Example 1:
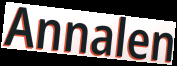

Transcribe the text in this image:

Annalen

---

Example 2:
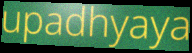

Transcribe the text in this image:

upadhyaya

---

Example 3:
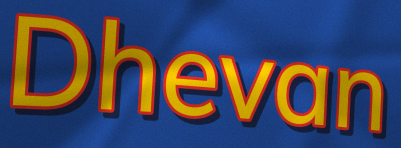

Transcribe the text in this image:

Dhevan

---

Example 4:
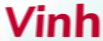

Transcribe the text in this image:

Vinh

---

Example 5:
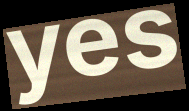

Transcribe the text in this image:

yes